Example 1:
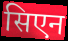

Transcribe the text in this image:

सिएन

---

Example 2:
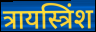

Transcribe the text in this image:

त्रायस्त्रिंश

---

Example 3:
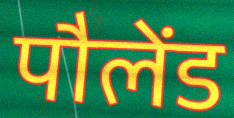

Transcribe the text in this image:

पौलेंड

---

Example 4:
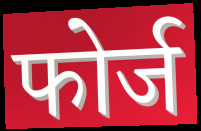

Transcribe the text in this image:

फोर्ज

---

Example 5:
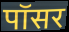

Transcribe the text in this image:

पॉसर